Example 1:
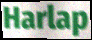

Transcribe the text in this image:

Harlap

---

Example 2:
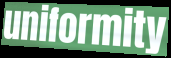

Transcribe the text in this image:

uniformity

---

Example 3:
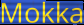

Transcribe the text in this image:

Mokka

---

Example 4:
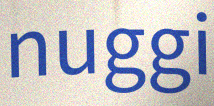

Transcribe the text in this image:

nuggi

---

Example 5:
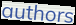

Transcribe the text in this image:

authors